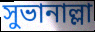
সুভানাল্লা